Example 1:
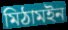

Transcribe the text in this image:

মিঠামইন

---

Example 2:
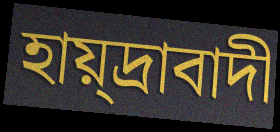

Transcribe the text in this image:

হায়্দ্রাবাদী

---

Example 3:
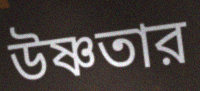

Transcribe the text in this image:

উষ্ণতার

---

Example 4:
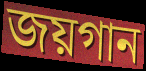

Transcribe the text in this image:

জয়গান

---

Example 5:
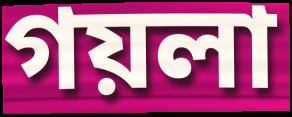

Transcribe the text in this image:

গয়লা